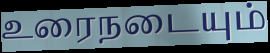
உரைநடையும்